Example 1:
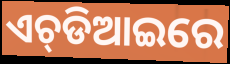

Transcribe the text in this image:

ଏଚ୍‌ଡିଆଇରେ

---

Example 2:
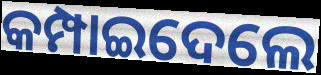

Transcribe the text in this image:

କମ୍ପାଇଦେଲେ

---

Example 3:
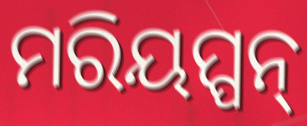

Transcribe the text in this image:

ମରିୟପ୍ପନ୍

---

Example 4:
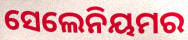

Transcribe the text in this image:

ସେଲେନିୟମର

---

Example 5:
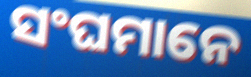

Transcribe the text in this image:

ସଂଘମାନେ